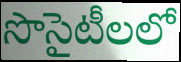
సొసైటీలలో